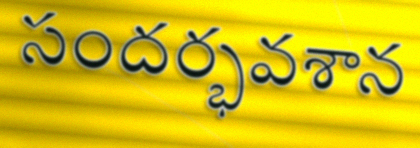
సందర్భవశాన